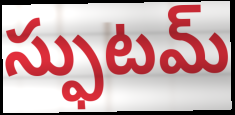
స్ఫుటమ్